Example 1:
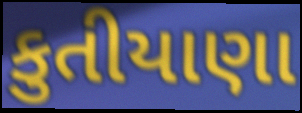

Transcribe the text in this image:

કુતીયાણા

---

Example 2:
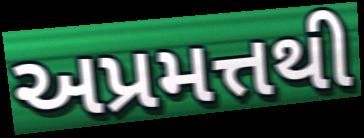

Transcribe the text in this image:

અપ્રમત્તથી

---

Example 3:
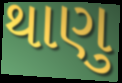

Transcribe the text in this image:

થાણુ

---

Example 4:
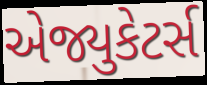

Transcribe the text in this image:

એજ્યુકેટર્સ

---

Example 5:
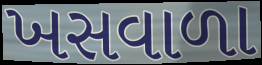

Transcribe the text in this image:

ખસવાળા